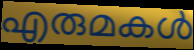
എരുമകൾ